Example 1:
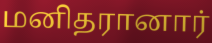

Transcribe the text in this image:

மனிதரானார்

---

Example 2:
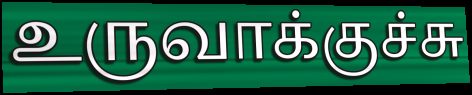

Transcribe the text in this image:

உருவாக்குச்சு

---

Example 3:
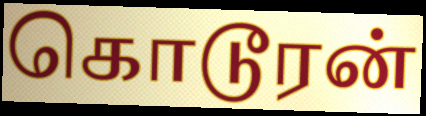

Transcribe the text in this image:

கொடூரன்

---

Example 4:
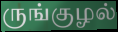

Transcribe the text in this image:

ருங்குழல்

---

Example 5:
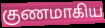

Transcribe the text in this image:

குணமாகிய